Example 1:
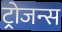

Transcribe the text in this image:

ट्रोजन्स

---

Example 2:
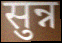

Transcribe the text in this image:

सुन्न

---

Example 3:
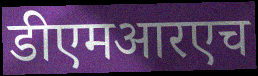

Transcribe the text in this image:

डीएमआरएच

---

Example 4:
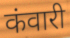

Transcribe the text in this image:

कंवारी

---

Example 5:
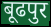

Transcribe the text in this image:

बूढपुर